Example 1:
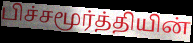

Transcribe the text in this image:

பிச்சமூர்த்தியின்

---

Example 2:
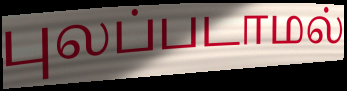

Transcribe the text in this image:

புலப்படாமல்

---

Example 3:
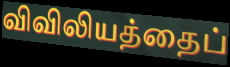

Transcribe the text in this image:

விவிலியத்தைப்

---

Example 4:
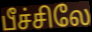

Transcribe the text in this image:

பீச்சிலே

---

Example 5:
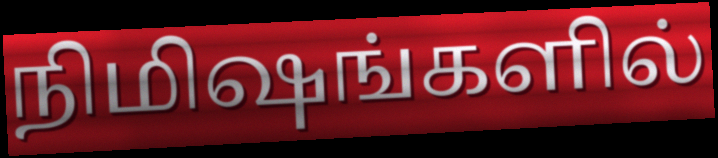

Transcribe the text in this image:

நிமிஷங்களில்